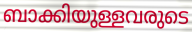
ബാക്കിയുള്ളവരുടെ